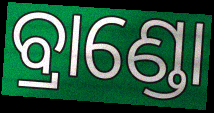
ବ୍ରାଣ୍ଡୋ